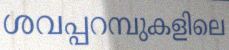
ശവപ്പറമ്പുകളിലെ